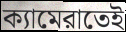
ক্যামেরাতেই